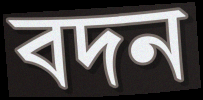
বদন